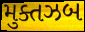
મુક્તઝબ